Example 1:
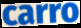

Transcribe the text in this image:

carro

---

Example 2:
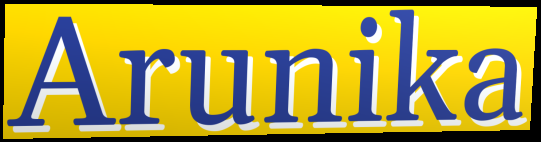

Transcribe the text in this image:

Arunika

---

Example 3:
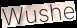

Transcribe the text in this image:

Wushe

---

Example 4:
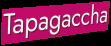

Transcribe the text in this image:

Tapagaccha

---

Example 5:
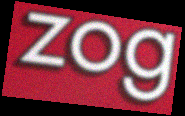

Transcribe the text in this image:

zog